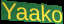
Yaako